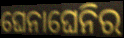
ଘେନାଘେନିର